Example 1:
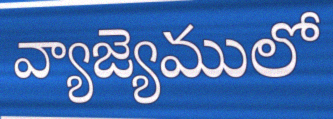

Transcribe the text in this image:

వ్యాజ్యెములో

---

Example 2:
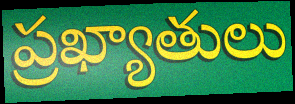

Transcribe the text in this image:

ప్రఖ్యాతులు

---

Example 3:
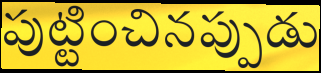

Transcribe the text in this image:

పుట్టించినప్పుడు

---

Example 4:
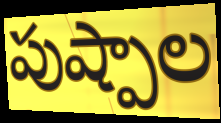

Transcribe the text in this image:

పుష్పాల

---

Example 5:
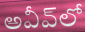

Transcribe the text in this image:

అవీవ్‌లో